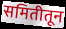
समितीतून